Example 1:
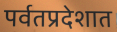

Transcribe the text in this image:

पर्वतप्रदेशात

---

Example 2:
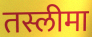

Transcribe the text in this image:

तस्लीमा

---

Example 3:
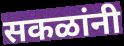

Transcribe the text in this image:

सकळांनी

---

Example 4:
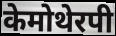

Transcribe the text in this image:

केमोथेरपी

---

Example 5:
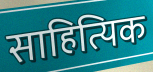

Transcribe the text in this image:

साहित्यिक